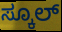
ಸ್ಕೂಲ್